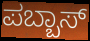
ಪಬ್ಬಾಸ್